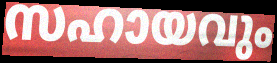
സഹായവും